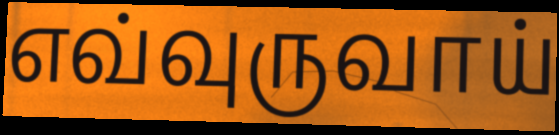
எவ்வுருவாய்